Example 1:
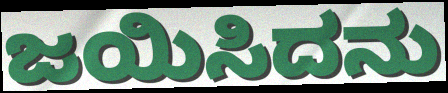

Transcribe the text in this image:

ಜಯಿಸಿದನು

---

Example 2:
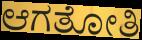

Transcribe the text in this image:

ಆಗತೋತಿ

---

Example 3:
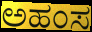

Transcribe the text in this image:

ಅಹಂಸ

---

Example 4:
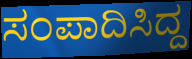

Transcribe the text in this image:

ಸಂಪಾದಿಸಿದ್ದ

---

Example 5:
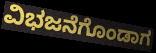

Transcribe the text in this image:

ವಿಭಜನೆಗೊಂಡಾಗ